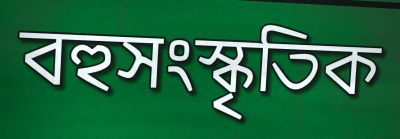
বহুসংস্কৃতিক